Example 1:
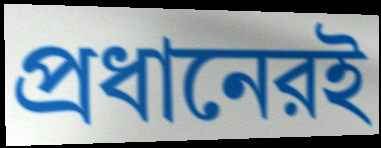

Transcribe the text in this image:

প্রধানেরই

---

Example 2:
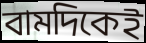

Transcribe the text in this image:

বামদিকেই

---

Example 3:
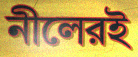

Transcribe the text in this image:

নীলেরই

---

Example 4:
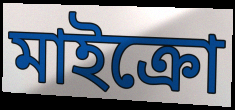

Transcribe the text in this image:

মাইক্রো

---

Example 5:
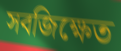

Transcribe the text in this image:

সবজিক্ষেত